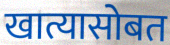
खात्यासोबत